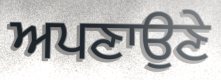
ਅਪਣਾਉਣੇ